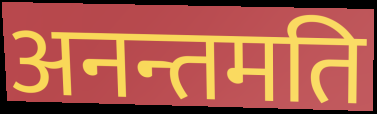
अनन्तमति